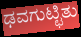
ಢವಗುಟ್ಟಿತು